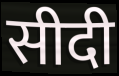
सीदी